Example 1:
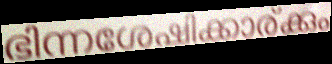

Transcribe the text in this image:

ഭിന്നശേഷിക്കാര്ക്കും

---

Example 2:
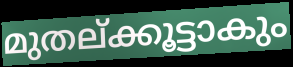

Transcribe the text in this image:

മുതല്ക്കൂട്ടാകും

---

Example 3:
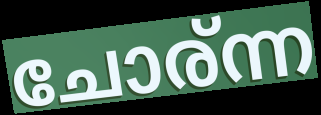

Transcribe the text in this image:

ചോര്ന്ന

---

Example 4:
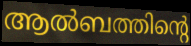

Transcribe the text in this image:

ആൽബത്തിന്റെ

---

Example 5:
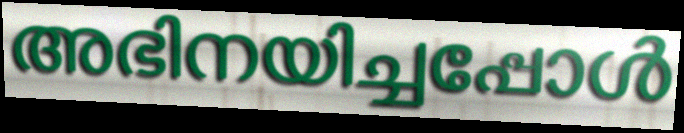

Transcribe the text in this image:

അഭിനയിച്ചപ്പോൾ